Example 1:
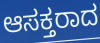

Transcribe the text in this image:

ಆಸಕ್ತರಾದ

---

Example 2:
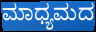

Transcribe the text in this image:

ಮಾಧ್ಯಮದ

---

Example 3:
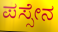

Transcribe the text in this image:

ಪಸ್ಸೇನ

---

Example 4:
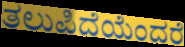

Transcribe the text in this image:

ತಲುಪಿದೆಯೆಂದರೆ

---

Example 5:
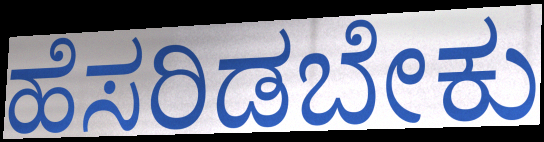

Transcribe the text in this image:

ಹೆಸರಿಡಬೇಕು